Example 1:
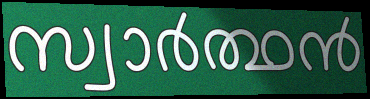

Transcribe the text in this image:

സ്വാർത്ഥൻ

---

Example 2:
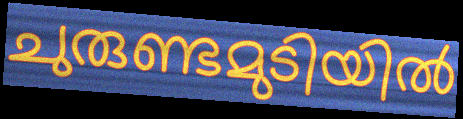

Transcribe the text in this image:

ചുരുണ്ടമുടിയിൽ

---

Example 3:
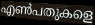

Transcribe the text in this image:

എൺപതുകളെ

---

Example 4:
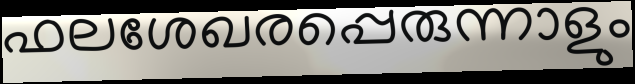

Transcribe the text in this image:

ഫലശേഖരപ്പെരുന്നാളും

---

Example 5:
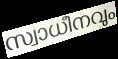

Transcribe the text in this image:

സ്വാധീനവും